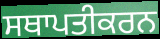
ਸਥਾਪਤੀਕਰਨ